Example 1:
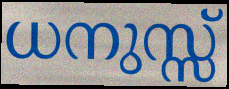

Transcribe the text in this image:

ധനുസ്സ്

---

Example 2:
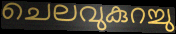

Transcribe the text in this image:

ചെലവുകുറച്ചു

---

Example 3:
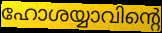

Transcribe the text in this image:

ഹോശയ്യാവിന്റെ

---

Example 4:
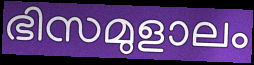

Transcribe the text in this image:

ഭിസമുളാലം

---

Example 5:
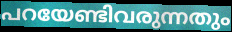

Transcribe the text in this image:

പറയേണ്ടിവരുന്നതും